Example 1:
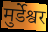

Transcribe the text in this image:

मुर्डेश्वर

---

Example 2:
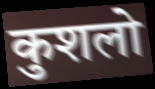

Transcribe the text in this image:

कुशलो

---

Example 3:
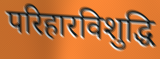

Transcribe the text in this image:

परिहारविशुद्धि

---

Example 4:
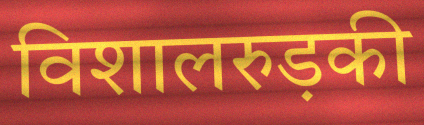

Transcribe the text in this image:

विशालरुड़की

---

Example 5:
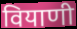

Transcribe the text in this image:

वियाणी